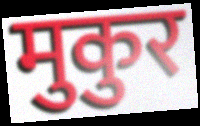
मुकुर